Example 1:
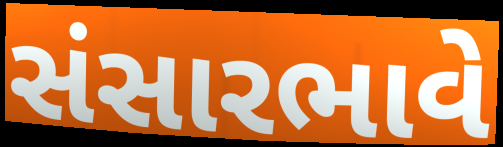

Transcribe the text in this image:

સંસારભાવે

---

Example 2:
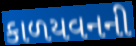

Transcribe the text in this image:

કાળયવનની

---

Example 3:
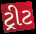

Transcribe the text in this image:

ટ્રીટ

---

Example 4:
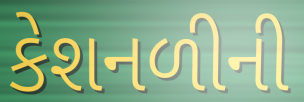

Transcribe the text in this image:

કેશનળીની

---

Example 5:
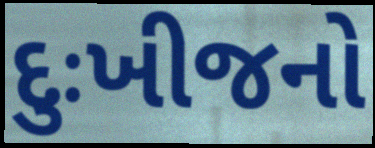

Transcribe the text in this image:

દુઃખીજનો